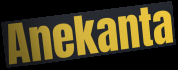
Anekanta